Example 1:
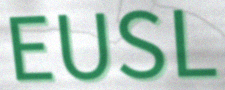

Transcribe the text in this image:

EUSL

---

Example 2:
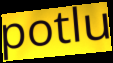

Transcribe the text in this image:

potlu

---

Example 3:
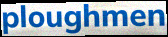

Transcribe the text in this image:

ploughmen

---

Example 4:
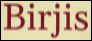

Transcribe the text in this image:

Birjis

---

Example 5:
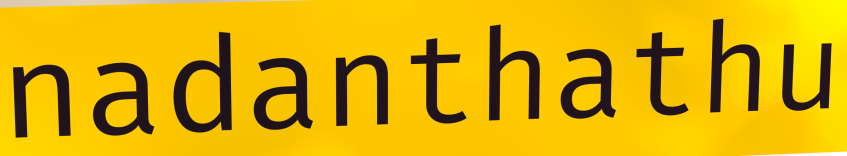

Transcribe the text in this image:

nadanthathu